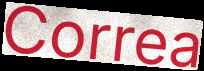
Correa